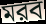
মরব